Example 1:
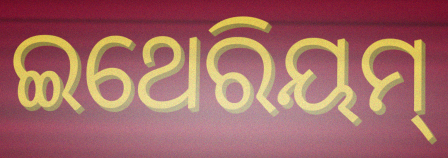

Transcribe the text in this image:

ଇଥେରିୟମ୍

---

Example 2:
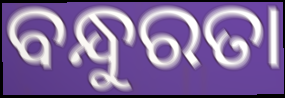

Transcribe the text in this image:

ବନ୍ଧୁରତା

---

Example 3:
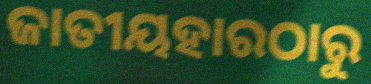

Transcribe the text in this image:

ଜାତୀୟହାରଠାରୁ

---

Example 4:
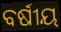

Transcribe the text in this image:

ବର୍ଷୀୟ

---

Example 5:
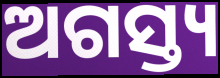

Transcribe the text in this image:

ଅଗସ୍ତ୍ୟ